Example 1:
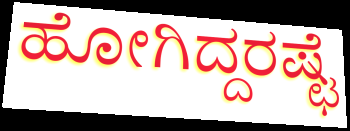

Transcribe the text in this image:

ಹೋಗಿದ್ದರಷ್ಟೆ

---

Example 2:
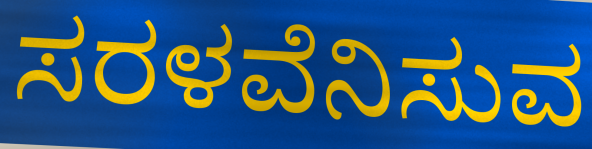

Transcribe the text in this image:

ಸರಳವೆನಿಸುವ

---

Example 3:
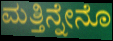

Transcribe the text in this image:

ಮತ್ತಿನ್ನೇನೊ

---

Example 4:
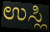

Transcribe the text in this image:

ಉಸ್ಲಿ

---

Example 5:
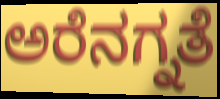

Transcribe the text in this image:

ಅರೆನಗ್ನತೆ